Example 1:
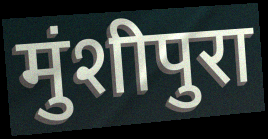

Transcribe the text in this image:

मुंशीपुरा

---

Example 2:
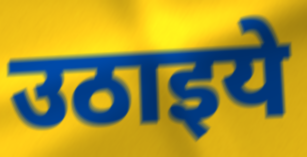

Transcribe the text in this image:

उठाइये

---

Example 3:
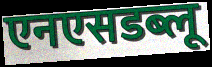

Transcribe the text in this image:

एनएसडब्लू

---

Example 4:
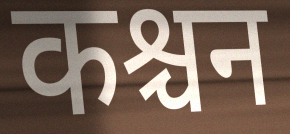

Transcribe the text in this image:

कश्चन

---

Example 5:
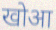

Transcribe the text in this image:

खोआ